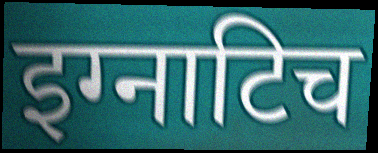
इग्नाटिच